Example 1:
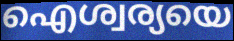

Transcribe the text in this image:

ഐശ്വര്യയെ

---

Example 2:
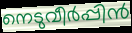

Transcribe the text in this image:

നെടുവീർപ്പിൻ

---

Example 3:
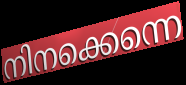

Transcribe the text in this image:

നിനക്കെന്നെ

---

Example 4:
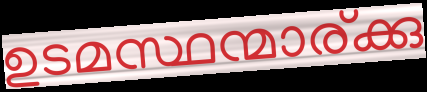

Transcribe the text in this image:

ഉടമസ്ഥന്മാര്ക്കു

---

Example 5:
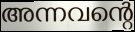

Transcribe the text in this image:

അന്നവന്റെ